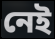
নেই